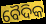
ବୈଦିକ